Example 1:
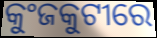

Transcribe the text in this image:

କୁଂଜକୁଟୀରେ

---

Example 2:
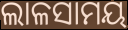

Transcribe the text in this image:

ଲାଳସାମୟ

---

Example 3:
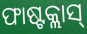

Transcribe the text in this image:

ଫାଷ୍ଟକ୍ଲାସ୍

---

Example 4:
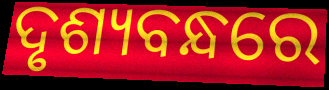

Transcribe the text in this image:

ଦୃଶ୍ୟବନ୍ଧରେ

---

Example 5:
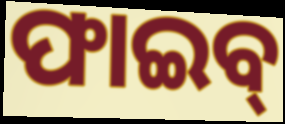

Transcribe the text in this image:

ଫାଇବ୍